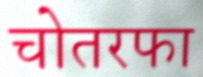
चोतरफा